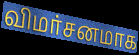
விமர்சனமாக